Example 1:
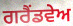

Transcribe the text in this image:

ਗਰੈਂਡਵੇਅ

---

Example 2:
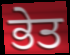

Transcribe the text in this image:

ਭੇਤ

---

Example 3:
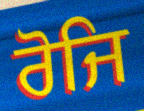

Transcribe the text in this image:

ਰੋਜਿ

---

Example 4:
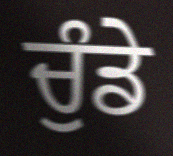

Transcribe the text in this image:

ਚੁੰਡੇ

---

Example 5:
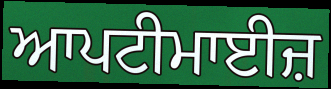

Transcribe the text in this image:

ਆਪਟੀਮਾਈਜ਼